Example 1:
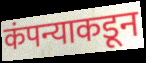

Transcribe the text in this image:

कंपन्याकडून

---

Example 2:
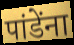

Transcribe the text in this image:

पांडेंना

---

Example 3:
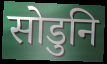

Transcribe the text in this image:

सोडुनि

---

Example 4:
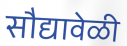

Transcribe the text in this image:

सौद्यावेळी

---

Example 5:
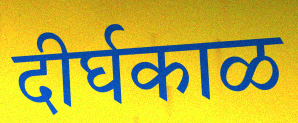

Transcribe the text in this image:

दीर्घकाळ